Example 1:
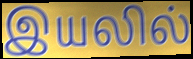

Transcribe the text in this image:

இயலில்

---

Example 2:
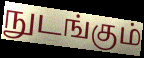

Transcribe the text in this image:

நுடங்கும்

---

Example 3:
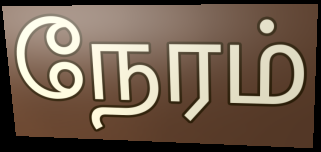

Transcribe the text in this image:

நேரம்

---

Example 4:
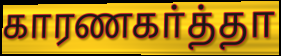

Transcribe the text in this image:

காரணகர்த்தா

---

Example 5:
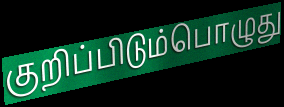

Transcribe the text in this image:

குறிப்பிடும்பொழுது